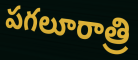
పగలూరాత్రి